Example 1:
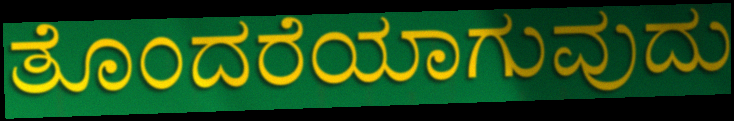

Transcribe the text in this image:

ತೊಂದರೆಯಾಗುವುದು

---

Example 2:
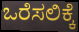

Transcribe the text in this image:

ಒರೆಸಲಿಕ್ಕೆ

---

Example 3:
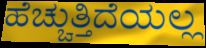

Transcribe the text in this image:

ಹೆಚ್ಚುತ್ತಿದೆಯಲ್ಲ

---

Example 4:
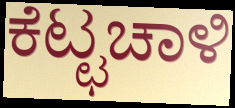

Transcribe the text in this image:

ಕೆಟ್ಟಚಾಳಿ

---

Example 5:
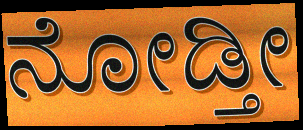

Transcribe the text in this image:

ನೋಡ್ತೀ